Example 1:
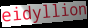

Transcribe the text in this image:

eidyllion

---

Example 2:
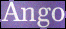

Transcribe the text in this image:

Ango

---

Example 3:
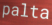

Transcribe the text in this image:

palta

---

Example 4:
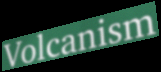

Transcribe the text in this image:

Volcanism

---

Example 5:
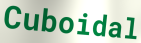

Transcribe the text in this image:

Cuboidal